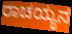
ರಾಚಯ್ಯನ